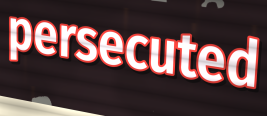
persecuted